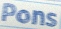
Pons